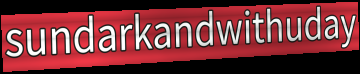
sundarkandwithuday